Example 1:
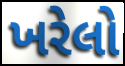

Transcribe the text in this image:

ખરેલો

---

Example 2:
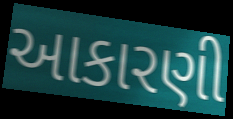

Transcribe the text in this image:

આકારણી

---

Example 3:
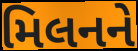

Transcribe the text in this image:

મિલનને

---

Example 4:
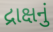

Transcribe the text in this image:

દ્રાક્ષનું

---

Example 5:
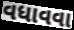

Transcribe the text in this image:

વધાવવા